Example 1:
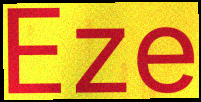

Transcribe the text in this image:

Eze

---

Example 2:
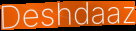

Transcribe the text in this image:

Deshdaaz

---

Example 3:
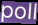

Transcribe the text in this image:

poll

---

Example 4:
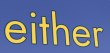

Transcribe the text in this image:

either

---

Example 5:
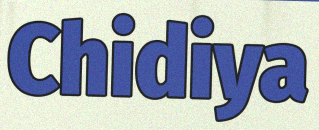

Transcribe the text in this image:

Chidiya